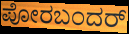
ಪೋರಬಂದರ್